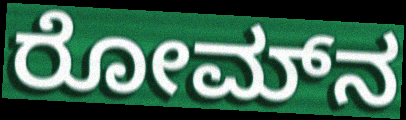
ರೋಮ್‍ನ